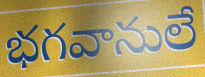
భగవానులే